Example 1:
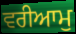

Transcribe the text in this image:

ਵਰੀਆਮੁ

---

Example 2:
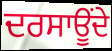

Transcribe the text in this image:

ਦਰਸਾਊਂਦੇ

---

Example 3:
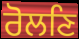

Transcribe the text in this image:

ਰੋਲਣਿ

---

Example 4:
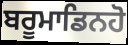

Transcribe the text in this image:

ਬਰੂਮਾਡਿਨਹੋ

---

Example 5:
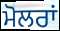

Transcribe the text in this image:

ਮੋਲਰਾਂ